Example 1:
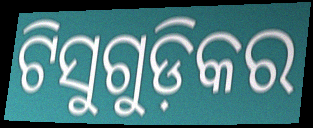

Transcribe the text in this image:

ଟିସୁଗୁଡ଼ିକର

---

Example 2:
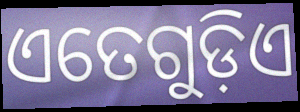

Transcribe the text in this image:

ଏତେଗୁଡ଼ିଏ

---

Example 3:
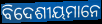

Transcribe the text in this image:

ବିଦେଶୀୟମାନେ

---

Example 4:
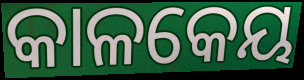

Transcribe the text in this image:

କାଳକେୟ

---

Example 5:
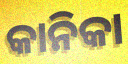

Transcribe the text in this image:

କାନିକା